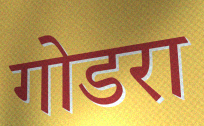
गोडरा